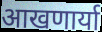
आखणार्या